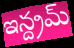
ఇన్ద్రమ్